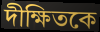
দীক্ষিতকে